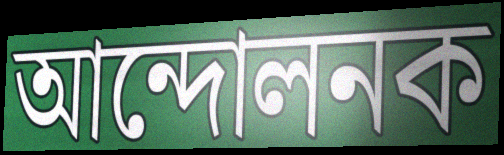
আন্দোলনক